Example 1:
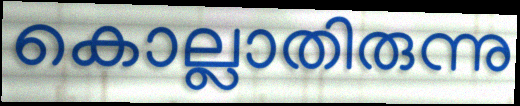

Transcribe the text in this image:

കൊല്ലാതിരുന്നു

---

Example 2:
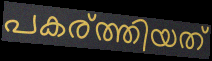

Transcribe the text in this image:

പകര്ത്തിയത്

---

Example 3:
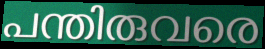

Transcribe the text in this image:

പന്തിരുവരെ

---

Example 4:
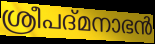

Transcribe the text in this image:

ശ്രീപദ്മനാഭൻ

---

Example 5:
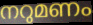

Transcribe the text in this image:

നറുമണം